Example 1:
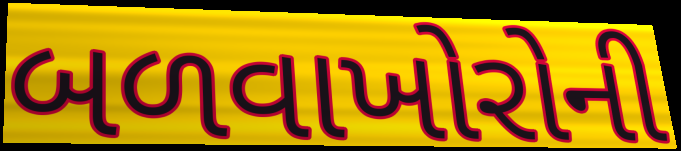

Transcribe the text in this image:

બળવાખોરોની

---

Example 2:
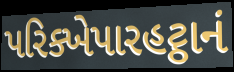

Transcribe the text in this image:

પરિક્ખેપારહટ્ઠાનં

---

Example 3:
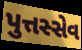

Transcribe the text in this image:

પુત્તસ્સેવ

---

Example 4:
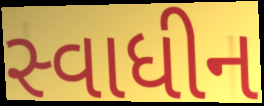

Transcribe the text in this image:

સ્વાધીન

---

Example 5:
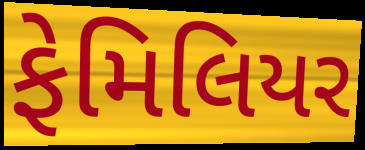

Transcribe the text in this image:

ફેમિલિયર